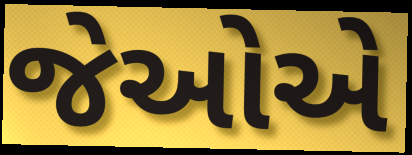
જેઓએ